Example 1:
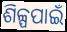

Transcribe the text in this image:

ଶିଳ୍ପପାଇଁ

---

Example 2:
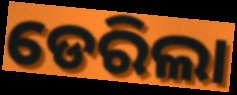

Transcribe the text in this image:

ଡେରିଲା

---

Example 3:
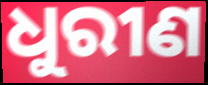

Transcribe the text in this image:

ଧୁରୀଣ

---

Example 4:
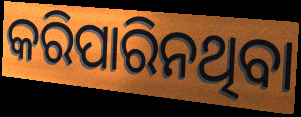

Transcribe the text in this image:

କରିପାରିନଥିବା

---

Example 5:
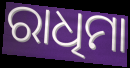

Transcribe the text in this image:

ରାଧିମା